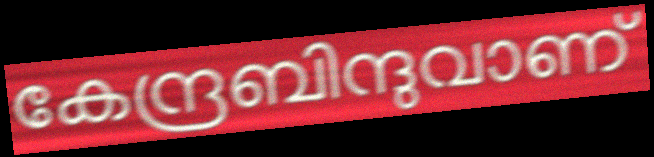
കേന്ദ്രബിന്ദുവാണ്